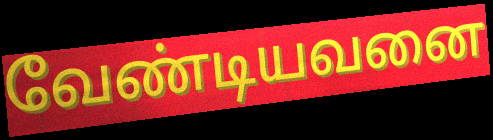
வேண்டியவனை